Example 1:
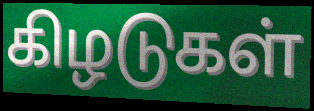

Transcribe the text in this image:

கிழடுகள்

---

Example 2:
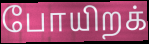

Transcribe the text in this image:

போயிறக்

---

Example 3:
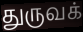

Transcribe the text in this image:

துருவக்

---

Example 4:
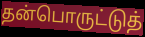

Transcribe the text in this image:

தன்பொருட்டுத்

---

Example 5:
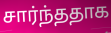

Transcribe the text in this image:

சார்ந்ததாக